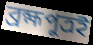
ব্রহ্মপুত্রই